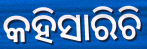
କହିସାରିଚି